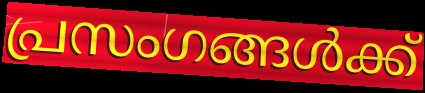
പ്രസംഗങ്ങൾക്ക്